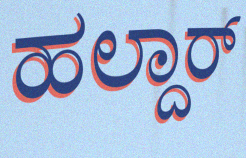
ಹಲ್ದಾರ್